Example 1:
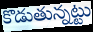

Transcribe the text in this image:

కొడుతున్నట్టు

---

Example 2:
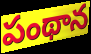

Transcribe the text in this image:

పంథాన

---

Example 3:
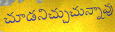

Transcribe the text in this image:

చూడనిచ్చుచున్నావు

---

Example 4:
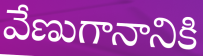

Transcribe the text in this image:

వేణుగానానికి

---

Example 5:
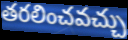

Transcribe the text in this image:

తరలించవచ్చు